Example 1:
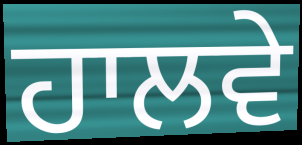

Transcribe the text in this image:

ਹਾਲਵੇ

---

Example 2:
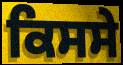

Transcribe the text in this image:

ਕਿਸਸੇ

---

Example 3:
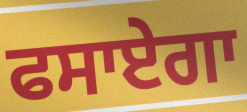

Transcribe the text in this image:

ਫਸਾਏਗਾ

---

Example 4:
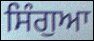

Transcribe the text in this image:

ਸਿੰਗੁਆ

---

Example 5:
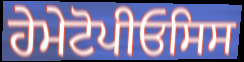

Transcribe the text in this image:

ਹੇਮੇਟੋਪੀਓਸਿਸ